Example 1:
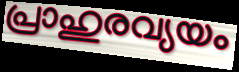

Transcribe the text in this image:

പ്രാഹുരവ്യയം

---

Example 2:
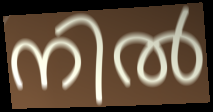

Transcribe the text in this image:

നിൽ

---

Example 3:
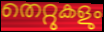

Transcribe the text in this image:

തെറ്റുകളും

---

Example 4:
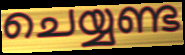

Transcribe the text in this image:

ചെയ്യണ്ട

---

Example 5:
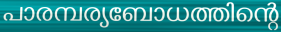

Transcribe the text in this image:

പാരമ്പര്യബോധത്തിന്റെ